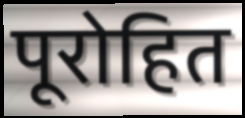
पूरोहित